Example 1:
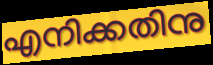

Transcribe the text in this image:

എനിക്കതിനു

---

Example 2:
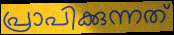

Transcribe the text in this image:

പ്രാപിക്കുന്നത്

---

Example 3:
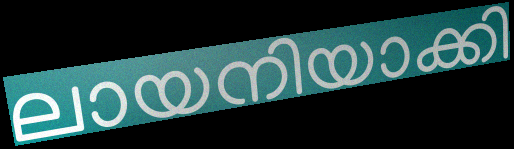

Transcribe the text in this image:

ലായനിയാക്കി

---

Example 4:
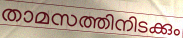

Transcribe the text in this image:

താമസത്തിനിടക്കും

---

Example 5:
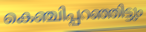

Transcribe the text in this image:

കെഞ്ചിപ്പറഞ്ഞിട്ടും